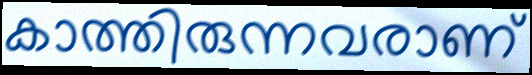
കാത്തിരുന്നവരാണ്